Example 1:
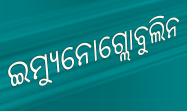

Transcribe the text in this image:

ଇମ୍ୟୁନୋଗ୍ଲୋବୁଲିନ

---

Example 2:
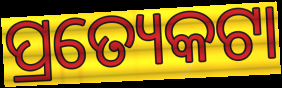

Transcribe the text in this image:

ପ୍ରତ୍ୟେକଟା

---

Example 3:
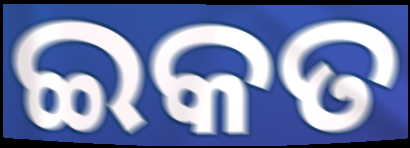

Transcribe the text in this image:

ଇକତ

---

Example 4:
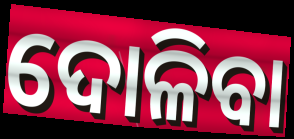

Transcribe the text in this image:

ଦୋଳିବା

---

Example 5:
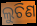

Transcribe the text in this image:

ଲୁଚିଣ